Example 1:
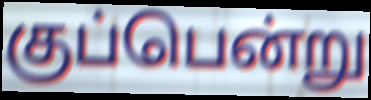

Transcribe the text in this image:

குப்பென்று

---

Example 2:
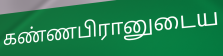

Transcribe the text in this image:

கண்ணபிரானுடைய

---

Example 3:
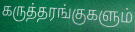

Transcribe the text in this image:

கருத்தரங்குகளும்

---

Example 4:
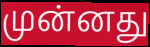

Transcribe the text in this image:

முன்னது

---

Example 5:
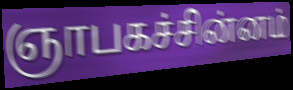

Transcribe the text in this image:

ஞாபகச்சின்னம்